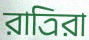
রাত্রিরা